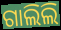
ଗାଲିଲି